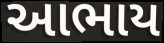
આભાય